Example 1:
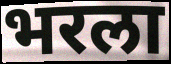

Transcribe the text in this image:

भरला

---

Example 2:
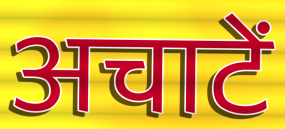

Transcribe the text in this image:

अचाटें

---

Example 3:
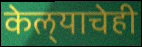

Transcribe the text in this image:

केल्याचेही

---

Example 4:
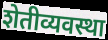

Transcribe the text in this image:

शेतीव्यवस्था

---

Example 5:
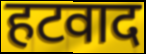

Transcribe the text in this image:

हटवाद